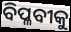
ବିପ୍ଳବୀକୁ